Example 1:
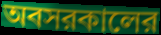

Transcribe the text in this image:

অবসরকালের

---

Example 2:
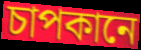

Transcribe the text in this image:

চাপকানে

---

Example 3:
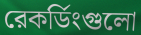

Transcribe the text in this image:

রেকর্ডিংগুলো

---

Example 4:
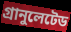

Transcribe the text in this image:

গ্রানুলেটেড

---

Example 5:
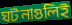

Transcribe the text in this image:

ঘটনাগুলিই